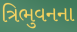
ત્રિભુવનના